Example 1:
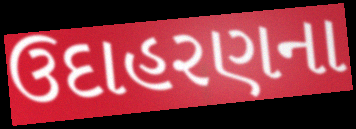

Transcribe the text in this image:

ઉદાહરણના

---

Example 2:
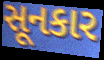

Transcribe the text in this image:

સૂનકાર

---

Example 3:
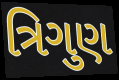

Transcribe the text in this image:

ત્રિગુણ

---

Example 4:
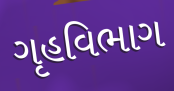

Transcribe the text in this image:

ગૃહવિભાગ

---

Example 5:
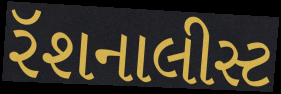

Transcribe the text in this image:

રૅશનાલીસ્ટ